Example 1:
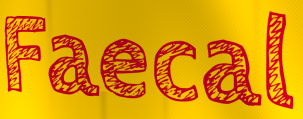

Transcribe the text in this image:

Faecal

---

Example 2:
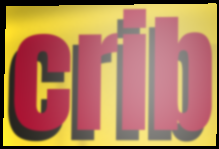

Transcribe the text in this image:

crib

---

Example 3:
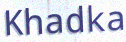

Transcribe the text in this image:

Khadka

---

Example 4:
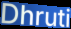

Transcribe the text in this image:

Dhruti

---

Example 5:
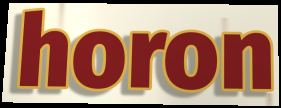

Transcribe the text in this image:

horon